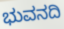
ಭುವನದಿ